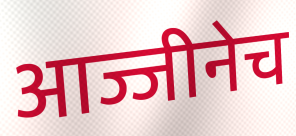
आज्जीनेच